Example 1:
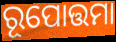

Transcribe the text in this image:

ରୂପୋତ୍ତମା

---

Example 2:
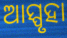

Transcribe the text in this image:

ଆସ୍ପୃହା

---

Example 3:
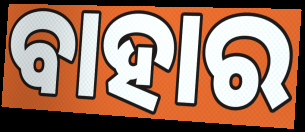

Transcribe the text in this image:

ବାହାର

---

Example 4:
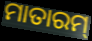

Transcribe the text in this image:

ମାତାରମ୍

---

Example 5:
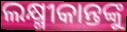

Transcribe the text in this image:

ଲକ୍ଷ୍ମୀକାନ୍ତଙ୍କୁ